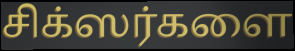
சிக்ஸர்களை